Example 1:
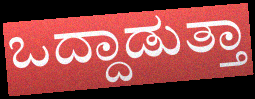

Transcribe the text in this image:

ಒದ್ದಾಡುತ್ತಾ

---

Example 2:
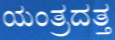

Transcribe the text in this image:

ಯಂತ್ರದತ್ತ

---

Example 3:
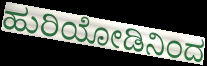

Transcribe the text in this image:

ಹುರಿಯೋಡಿನಿಂದ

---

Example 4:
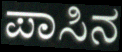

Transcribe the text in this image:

ಪಾಸಿನ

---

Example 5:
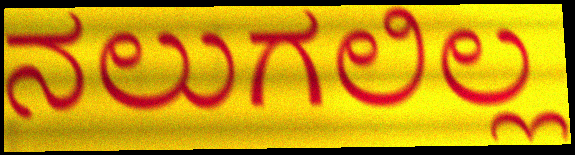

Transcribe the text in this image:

ನಲುಗಲಿಲ್ಲ